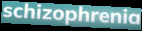
schizophrenia